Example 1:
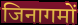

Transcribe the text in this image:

जिनागमों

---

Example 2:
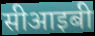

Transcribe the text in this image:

सीआइबी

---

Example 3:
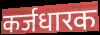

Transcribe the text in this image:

कर्जधारक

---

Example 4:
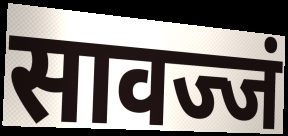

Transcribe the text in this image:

सावज्जं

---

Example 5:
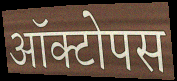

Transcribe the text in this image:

ऑक्टोपस